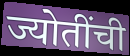
ज्योतींची